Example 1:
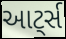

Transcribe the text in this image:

આટ્‌ર્સ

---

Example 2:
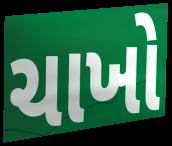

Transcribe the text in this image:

ચાખો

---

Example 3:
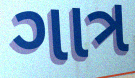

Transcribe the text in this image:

ગાત્ર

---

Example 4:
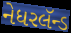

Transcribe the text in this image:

નેધરલૅન્ડ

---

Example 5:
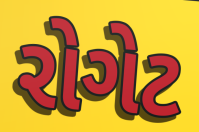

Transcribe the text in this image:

રોગેટ